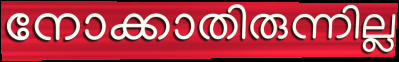
നോക്കാതിരുന്നില്ല